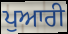
ਪੁਆਰੀ